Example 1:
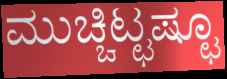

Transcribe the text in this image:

ಮುಚ್ಚಿಟ್ಟಷ್ಟೂ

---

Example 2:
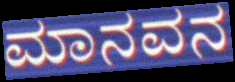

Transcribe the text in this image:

ಮಾನವನ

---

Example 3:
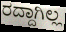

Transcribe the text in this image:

ರದ್ದಾಗಿಲ್ಲ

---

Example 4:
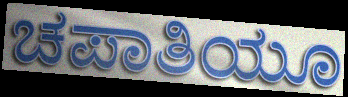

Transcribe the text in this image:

ಚಪಾತಿಯೂ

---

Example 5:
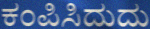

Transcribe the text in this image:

ಕಂಪಿಸಿದುದು